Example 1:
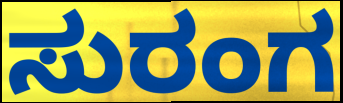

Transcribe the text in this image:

ಸುರಂಗ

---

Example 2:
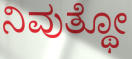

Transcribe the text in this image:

ನಿವುತ್ಥೋ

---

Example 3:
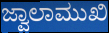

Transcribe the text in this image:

ಜ್ವಾಲಾಮುಖಿ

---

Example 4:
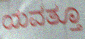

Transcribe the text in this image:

ಯವತ್ತೂ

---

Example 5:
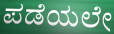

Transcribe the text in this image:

ಪಡೆಯಲೇ